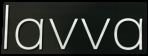
lavva